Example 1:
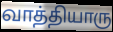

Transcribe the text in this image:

வாத்தியாரு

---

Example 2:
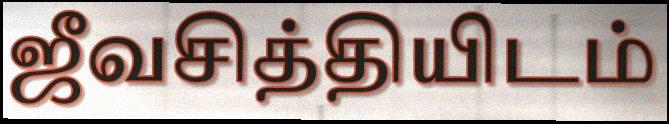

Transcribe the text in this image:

ஜீவசித்தியிடம்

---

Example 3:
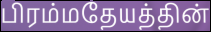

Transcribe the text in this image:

பிரம்மதேயத்தின்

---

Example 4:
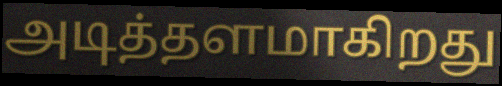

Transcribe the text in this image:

அடித்தளமாகிறது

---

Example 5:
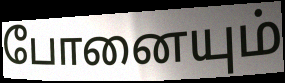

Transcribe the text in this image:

போனையும்